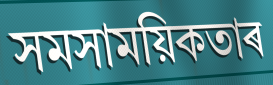
সমসাময়িকতাৰ